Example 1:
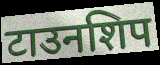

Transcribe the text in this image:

टाउनशिप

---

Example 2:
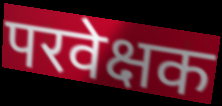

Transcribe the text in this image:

परवेक्षक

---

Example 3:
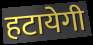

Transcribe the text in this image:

हटायेगी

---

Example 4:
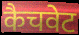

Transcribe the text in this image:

कैचवेट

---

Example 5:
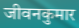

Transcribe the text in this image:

जीवनकुमार